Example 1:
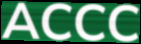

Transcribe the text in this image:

ACCC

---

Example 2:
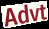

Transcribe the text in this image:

Advt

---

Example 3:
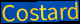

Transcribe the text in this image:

Costard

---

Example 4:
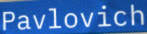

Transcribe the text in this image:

Pavlovich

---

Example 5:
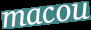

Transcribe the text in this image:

macou